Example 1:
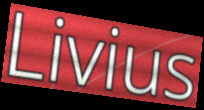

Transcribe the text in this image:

Livius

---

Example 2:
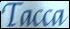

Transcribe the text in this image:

Tacca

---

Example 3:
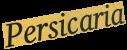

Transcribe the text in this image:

Persicaria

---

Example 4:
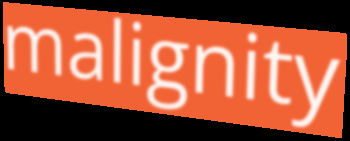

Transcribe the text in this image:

malignity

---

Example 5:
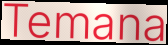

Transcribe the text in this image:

Temana